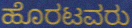
ಹೊರಟವರು